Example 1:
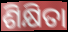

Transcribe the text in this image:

ଶିକ୍ଷିତା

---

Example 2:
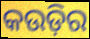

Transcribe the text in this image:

କଉଡ଼ିର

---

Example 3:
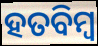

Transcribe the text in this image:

ହତବିମ୍ବ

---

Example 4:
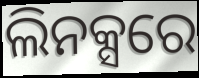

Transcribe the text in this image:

ଲିନକ୍ସରେ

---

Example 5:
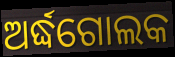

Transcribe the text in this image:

ଅର୍ଦ୍ଧଗୋଲକ